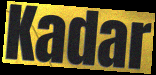
Kadar